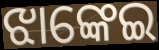
ଝାଙ୍କେଇ